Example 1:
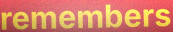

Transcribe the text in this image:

remembers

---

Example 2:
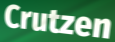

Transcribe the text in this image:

Crutzen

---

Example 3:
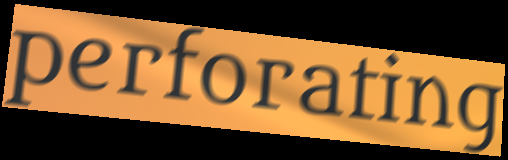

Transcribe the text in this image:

perforating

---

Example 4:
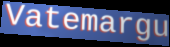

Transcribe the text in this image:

Vatemargu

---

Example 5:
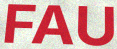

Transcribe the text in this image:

FAU